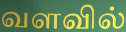
வளவில்